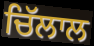
ਚਿੱਲਾਲ